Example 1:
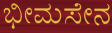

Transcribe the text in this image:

ಭೀಮಸೇನ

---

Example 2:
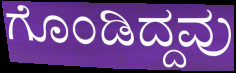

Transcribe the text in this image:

ಗೊಂಡಿದ್ದವು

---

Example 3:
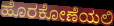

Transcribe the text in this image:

ಹೊರಕೋಣೆಯಲಿ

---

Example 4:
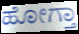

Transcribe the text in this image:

ಹೋಗ್ತಾ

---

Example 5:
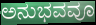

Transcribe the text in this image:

ಅನುಭವವೂ